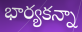
భార్యకన్నా